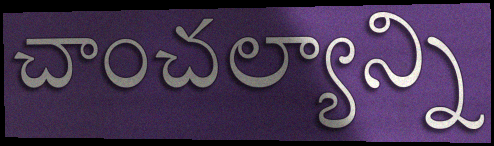
చాంచల్యాన్ని